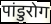
पांडुरोग